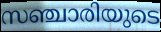
സഞ്ചാരിയുടെ